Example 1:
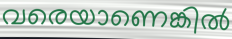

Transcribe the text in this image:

വരെയാണെങ്കിൽ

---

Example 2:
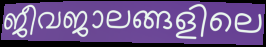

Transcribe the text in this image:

ജീവജാലങ്ങളിലെ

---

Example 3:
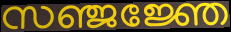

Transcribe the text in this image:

സഞ്ജജ്ഞേ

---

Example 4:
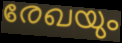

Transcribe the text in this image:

രേഖയും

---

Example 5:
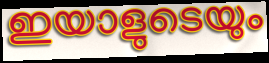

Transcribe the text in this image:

ഇയാളുടെയും